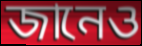
জানেও